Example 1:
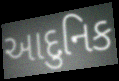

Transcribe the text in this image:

આદુનિક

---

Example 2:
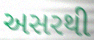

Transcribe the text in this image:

અસરથી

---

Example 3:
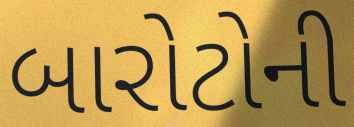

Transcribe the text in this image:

બારોટોની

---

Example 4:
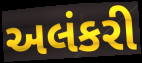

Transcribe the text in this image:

અલંકરી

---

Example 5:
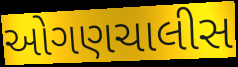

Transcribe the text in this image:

ઓગણચાલીસ